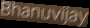
Bhanuvijay